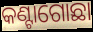
କଣ୍ଟାଗୋଛା